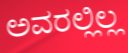
ಅವರಲ್ಲಿಲ್ಲ